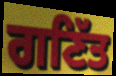
ਗਣਿੱਤ